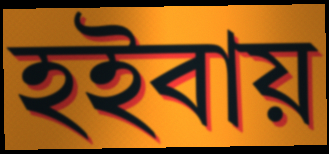
হইবায়